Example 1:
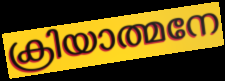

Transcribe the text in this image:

ക്രിയാത്മനേ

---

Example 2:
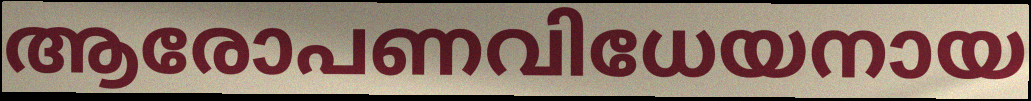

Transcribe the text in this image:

ആരോപണവിധേയനായ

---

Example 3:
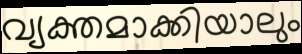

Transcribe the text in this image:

വ്യക്തമാക്കിയാലും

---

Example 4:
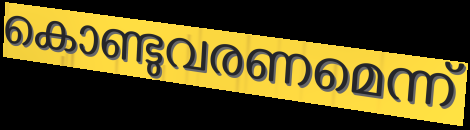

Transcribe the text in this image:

കൊണ്ടുവരണമെന്ന്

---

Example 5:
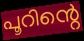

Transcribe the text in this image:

പൂറിന്റെ